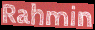
Rahmin